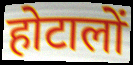
होटालों